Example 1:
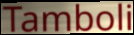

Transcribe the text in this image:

Tamboli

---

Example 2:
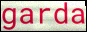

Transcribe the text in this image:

garda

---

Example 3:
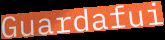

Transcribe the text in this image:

Guardafui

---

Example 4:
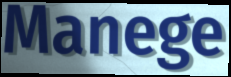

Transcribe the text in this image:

Manege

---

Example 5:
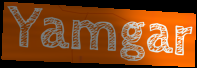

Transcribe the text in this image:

Yamgar